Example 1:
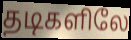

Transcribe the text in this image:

தடிகளிலே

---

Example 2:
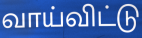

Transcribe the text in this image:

வாய்விட்டு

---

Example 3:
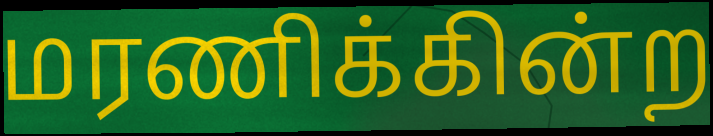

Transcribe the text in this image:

மரணிக்கின்ற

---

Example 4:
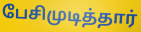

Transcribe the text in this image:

பேசிமுடித்தார்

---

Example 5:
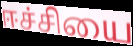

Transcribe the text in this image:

ஈச்சியை